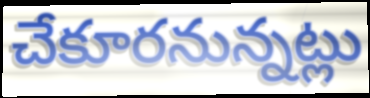
చేకూరనున్నట్లు